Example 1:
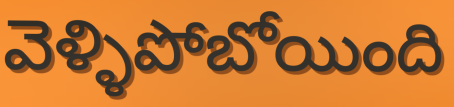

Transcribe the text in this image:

వెళ్ళిపోబోయింది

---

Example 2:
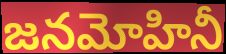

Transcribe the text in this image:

జనమోహినీ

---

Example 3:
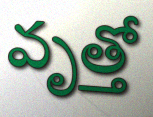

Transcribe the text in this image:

వృత్తో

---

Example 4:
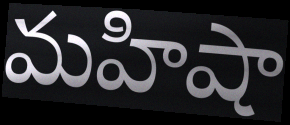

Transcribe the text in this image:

మహిషా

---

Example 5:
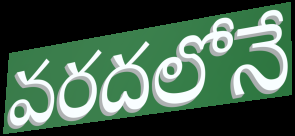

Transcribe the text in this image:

వరదలోనే